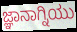
ಜ್ಞಾನಾಗ್ನಿಯು